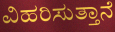
ವಿಹರಿಸುತ್ತಾನೆ